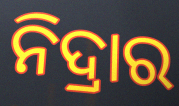
ନିଦ୍ରାର